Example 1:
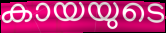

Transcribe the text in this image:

കായയുടെ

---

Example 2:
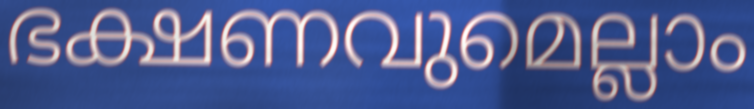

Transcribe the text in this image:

ഭക്ഷണവുമെല്ലാം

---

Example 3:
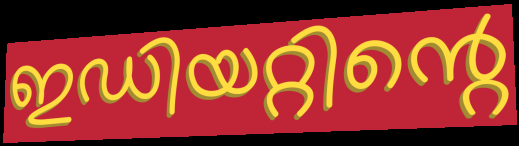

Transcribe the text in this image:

ഇഡിയറ്റിന്റെ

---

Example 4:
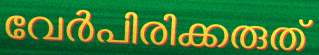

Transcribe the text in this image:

വേർപിരിക്കരുത്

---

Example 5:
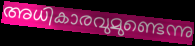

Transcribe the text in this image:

അധികാരവുമുണ്ടെന്നു